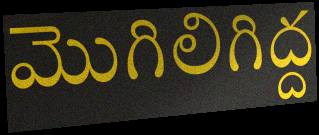
మొగిలిగిద్ద